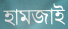
হামজাই